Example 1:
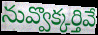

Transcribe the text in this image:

నువ్వొక్కర్తివే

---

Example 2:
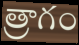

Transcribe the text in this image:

త్రాగం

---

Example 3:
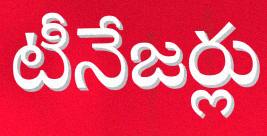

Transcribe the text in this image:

టీనేజర్లు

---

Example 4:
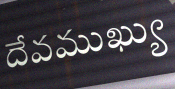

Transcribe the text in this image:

దేవముఖ్యు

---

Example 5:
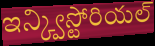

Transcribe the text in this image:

ఇన్క్విస్టోరియల్